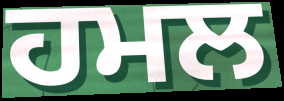
ਹਮਲ